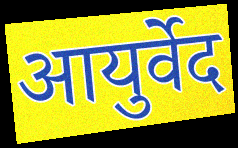
आयुर्वेद